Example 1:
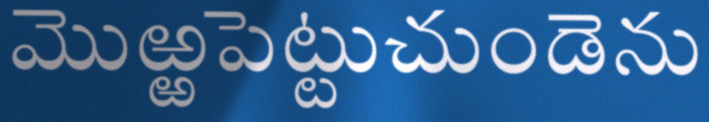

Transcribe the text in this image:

మొఱ్ఱపెట్టుచుండెను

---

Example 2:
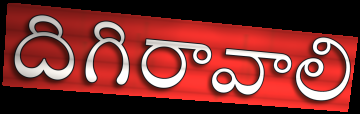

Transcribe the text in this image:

దిగిరావాలి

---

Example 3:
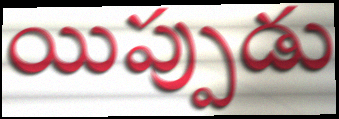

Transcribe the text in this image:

యిప్పుడు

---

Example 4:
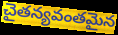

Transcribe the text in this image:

చైతన్యవంతమైన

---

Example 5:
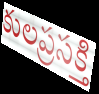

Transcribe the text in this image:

కులప్రసక్తి